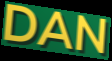
DAN